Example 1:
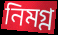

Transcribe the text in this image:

নিমগ্ন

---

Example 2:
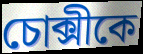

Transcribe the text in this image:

চোক্সীকে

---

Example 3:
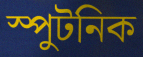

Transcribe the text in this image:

স্পুটনিক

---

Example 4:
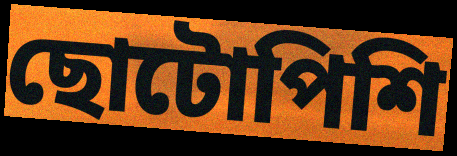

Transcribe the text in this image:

ছোটোপিশি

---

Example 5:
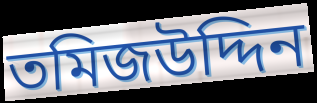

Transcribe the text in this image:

তমিজউদ্দিন